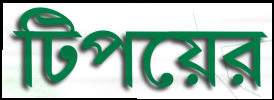
টিপয়ের